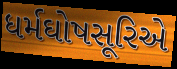
ધર્મઘોષસૂરિએ